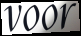
voor